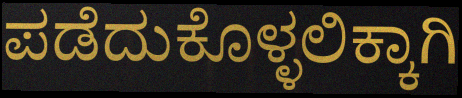
ಪಡೆದುಕೊಳ್ಳಲಿಕ್ಕಾಗಿ